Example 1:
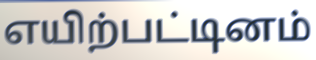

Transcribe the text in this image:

எயிற்பட்டினம்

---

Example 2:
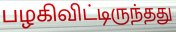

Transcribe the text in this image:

பழகிவிட்டிருந்தது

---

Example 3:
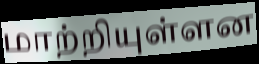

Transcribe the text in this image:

மாற்றியுள்ளன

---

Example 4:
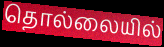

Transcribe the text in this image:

தொல்லையில்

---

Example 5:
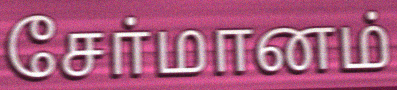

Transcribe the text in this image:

சேர்மானம்